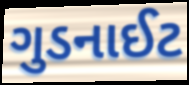
ગુડનાઈટ